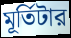
মূর্তিটার